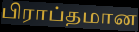
பிராப்தமான